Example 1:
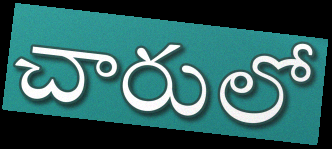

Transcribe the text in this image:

చారులో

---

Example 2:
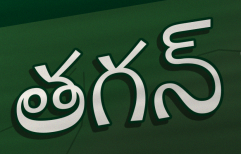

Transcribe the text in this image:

తగన్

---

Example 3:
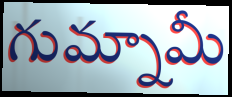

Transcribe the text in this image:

గుమ్నామీ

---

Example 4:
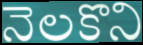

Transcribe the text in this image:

నెలకొని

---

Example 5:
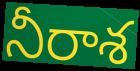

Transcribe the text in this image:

నీరాశ